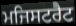
ਮਜਿਸਟਰੈਟ